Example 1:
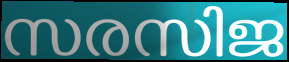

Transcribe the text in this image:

സരസിജ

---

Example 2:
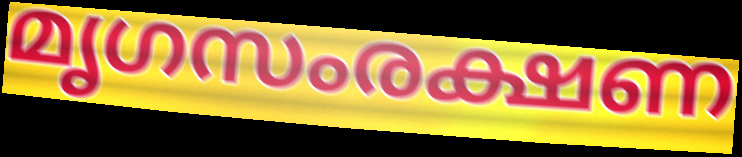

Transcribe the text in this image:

മൃഗസംരക്ഷണ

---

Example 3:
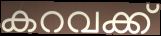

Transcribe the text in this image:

കറവക്ക്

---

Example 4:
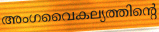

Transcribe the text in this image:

അംഗവൈകല്യത്തിന്റെ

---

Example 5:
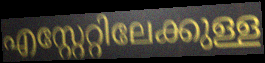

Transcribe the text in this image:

എസ്റ്റേറ്റിലേക്കുള്ള